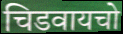
चिडवायचो